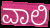
ವಾಲಿ